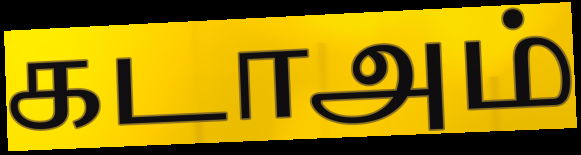
கடாஅம்